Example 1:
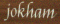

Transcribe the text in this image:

jokham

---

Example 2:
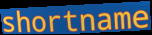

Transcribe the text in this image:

shortname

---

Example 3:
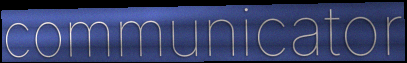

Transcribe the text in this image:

communicator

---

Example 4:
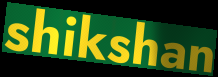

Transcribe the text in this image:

shikshan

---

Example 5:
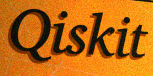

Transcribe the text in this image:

Qiskit